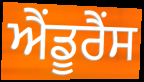
ਐਂਡੂਰੈਂਸ